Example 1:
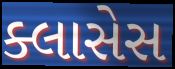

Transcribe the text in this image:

ક્લાસેસ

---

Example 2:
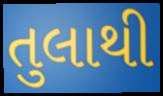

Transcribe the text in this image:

તુલાથી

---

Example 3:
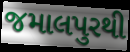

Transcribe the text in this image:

જમાલપુરથી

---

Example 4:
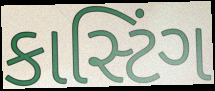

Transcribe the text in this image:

કાસ્ટિંગ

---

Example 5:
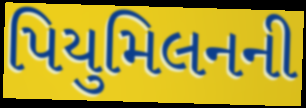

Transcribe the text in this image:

પિયુમિલનની